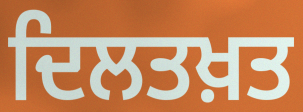
ਦਿਲਤਖ਼ਤ